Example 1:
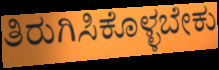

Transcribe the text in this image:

ತಿರುಗಿಸಿಕೊಳ್ಳಬೇಕು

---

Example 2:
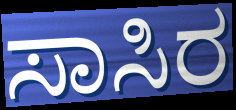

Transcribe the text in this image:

ಸಾಸಿರ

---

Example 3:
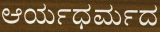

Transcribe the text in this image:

ಆರ್ಯಧರ್ಮದ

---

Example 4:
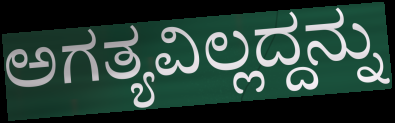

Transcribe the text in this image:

ಅಗತ್ಯವಿಲ್ಲದ್ದನ್ನು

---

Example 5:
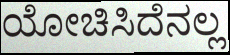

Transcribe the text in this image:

ಯೋಚಿಸಿದೆನಲ್ಲ